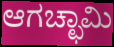
ಆಗಚ್ಛಾಮಿ